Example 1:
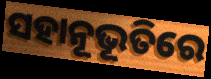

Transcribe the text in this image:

ସହାନୂଭୂତିରେ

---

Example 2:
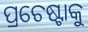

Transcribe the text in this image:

ପ୍ରଚେଷ୍ଟାକୁ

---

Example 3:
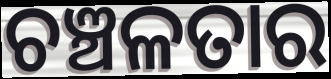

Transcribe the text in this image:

ଚଞ୍ଚଳତାର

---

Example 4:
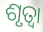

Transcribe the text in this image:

ଶୃତ୍ୱା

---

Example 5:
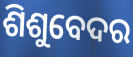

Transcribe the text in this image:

ଶିଶୁବେଦର